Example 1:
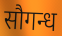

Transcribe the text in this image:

सौगन्ध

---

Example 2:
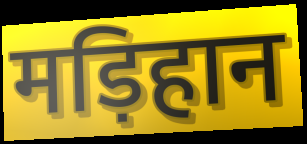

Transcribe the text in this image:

मड़िहान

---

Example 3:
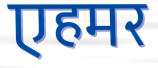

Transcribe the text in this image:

एहमर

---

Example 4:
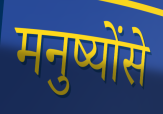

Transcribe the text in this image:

मनुष्योंसे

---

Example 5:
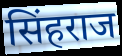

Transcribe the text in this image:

सिंहराज